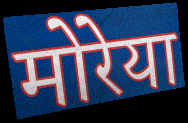
मोरेया